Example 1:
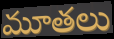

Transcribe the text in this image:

మూతలు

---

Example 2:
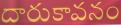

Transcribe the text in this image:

దారుకావనం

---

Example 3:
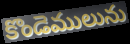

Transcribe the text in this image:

కొండెములును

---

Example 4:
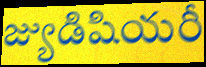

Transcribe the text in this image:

జ్యుడిషియరీ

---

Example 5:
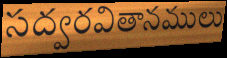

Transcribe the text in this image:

సద్వరవితానములు